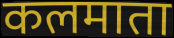
कलमाता